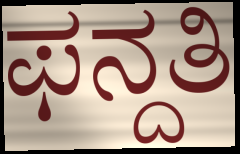
ಫನ್ದತಿ